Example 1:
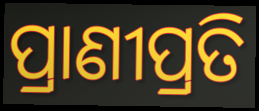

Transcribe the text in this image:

ପ୍ରାଣୀପ୍ରତି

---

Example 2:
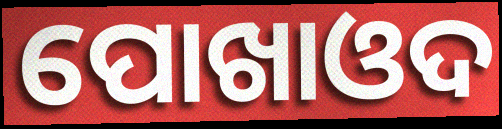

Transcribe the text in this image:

ପୋଖାଓଦ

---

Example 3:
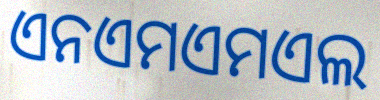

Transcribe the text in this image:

ଏନଏମଏମଏଲ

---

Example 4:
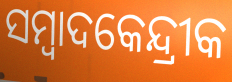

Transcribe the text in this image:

ସମ୍ୱାଦକେନ୍ଦ୍ରୀକ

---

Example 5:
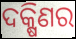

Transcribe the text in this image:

ଦକ୍ଷିଣର